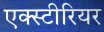
एक्स्टीरियर